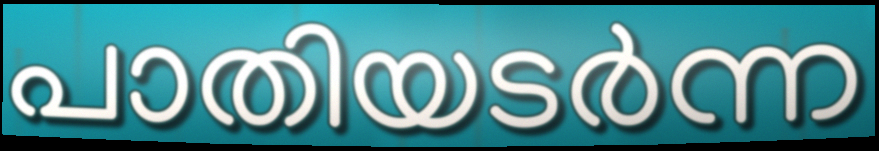
പാതിയടർന്ന